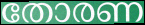
തോരണ